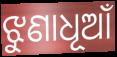
ଝୁଣାଧୂଆଁ